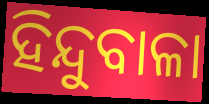
ହିନ୍ଦୁବାଳା